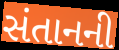
સંતાનની